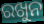
ରଖୁନ